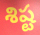
శిష్ట